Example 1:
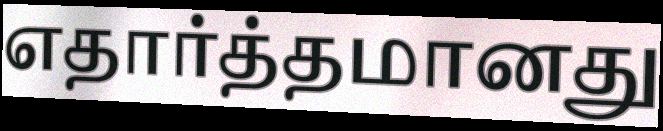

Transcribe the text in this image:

எதார்த்தமானது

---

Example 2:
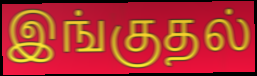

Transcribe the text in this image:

இங்குதல்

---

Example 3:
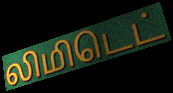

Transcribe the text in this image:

லிமிடெட்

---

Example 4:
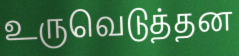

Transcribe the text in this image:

உருவெடுத்தன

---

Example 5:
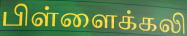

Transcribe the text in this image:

பிள்ளைக்கலி